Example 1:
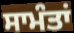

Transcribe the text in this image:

ਸਾਮੰਤਾਂ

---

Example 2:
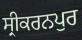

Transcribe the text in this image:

ਸ੍ਰੀਕਰਨਪੁਰ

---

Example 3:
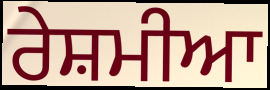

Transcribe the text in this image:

ਰੇਸ਼ਮੀਆ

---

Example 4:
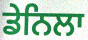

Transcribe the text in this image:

ਡੇਨਿਲਾ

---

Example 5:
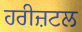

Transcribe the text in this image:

ਹਰੀਜ਼ਟਲ